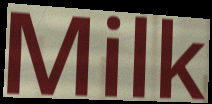
Milk